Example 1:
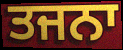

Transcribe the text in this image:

ਤਜਨਾ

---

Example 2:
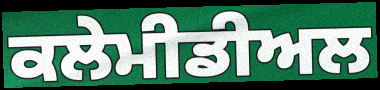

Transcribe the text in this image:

ਕਲੇਮੀਡੀਅਲ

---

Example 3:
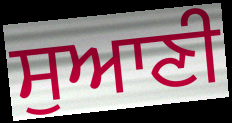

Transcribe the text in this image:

ਸੁਆਣੀ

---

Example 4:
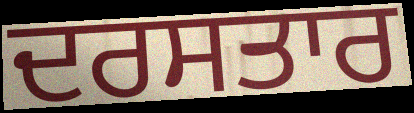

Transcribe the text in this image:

ਦਰਸਤਾਰ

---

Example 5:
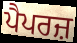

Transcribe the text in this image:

ਪੈਪਰਜ਼